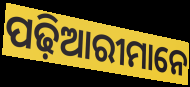
ପଢ଼ିଆରୀମାନେ